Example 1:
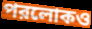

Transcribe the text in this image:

পরলোকও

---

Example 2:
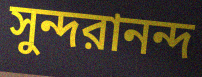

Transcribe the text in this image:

সুন্দরানন্দ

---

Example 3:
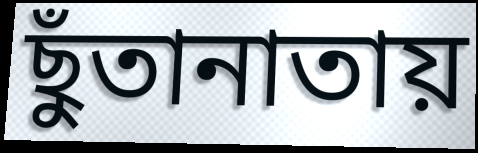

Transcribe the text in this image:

ছুঁতানাতায়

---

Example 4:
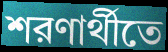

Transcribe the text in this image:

শরণার্থীতে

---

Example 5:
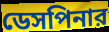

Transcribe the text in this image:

ডেসপিনার